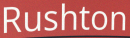
Rushton